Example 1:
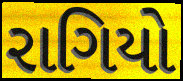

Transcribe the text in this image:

રાગિયો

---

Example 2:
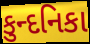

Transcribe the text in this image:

કુન્દનિકા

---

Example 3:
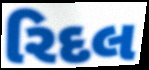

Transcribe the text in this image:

રિદલ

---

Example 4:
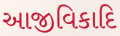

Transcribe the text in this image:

આજીવિકાદિ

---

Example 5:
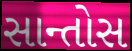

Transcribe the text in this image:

સાન્તોસ